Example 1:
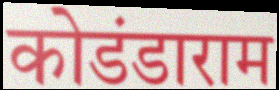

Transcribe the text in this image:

कोडंडाराम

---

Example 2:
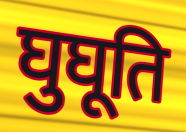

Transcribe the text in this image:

घुघूति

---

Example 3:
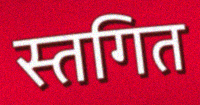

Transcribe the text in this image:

स्तगित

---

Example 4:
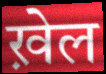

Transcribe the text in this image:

ख़ेल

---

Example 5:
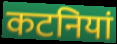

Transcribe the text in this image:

कटनियां